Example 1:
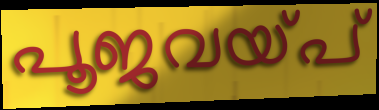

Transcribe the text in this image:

പൂജവയ്പ്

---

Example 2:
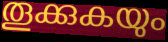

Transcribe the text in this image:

തൂക്കുകയും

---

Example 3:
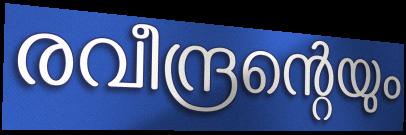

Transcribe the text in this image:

രവീന്ദ്രന്റെയും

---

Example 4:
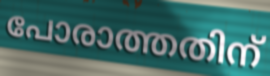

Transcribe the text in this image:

പോരാത്തതിന്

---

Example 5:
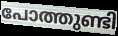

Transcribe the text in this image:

പോത്തുണ്ടി